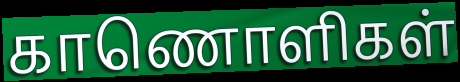
காணொளிகள்